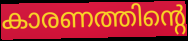
കാരണത്തിന്റെ